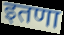
इतणा